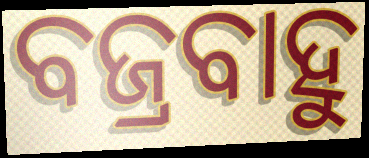
ବଜ୍ରବାହୁ